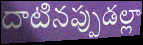
దాటినప్పుడల్లా